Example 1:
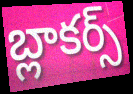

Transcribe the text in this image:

బ్లాకర్స్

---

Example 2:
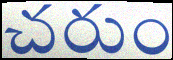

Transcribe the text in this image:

చరుం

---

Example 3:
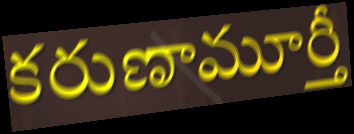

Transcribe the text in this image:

కరుణామూర్తీ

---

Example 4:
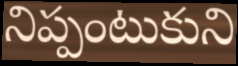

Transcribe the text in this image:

నిప్పంటుకుని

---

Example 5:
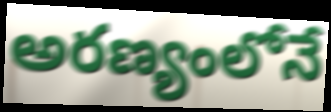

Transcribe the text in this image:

అరణ్యంలోనే